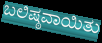
ಬಲಿಷ್ಠವಾಯಿತು